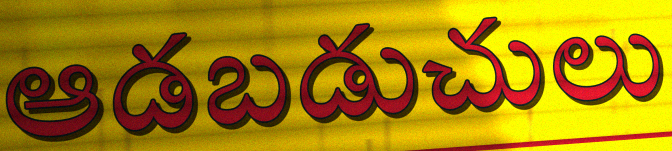
ఆడబడుచులు